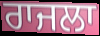
ਰਾਜਲਾ